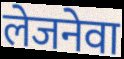
लेजनेवा